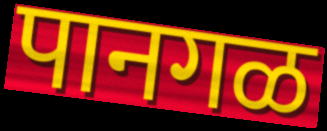
पानगळ